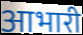
आभारी